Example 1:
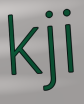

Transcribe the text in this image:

kji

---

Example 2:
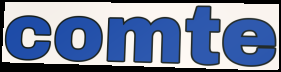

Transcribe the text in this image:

comte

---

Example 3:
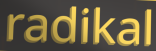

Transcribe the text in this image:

radikal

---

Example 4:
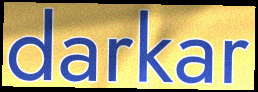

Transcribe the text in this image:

darkar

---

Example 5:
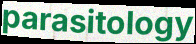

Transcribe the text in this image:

parasitology